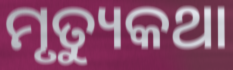
ମୃତ୍ୟୁକଥା